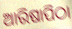
ଆରିଷାପିଠା